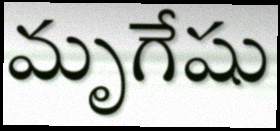
మృగేషు